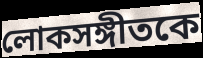
লোকসঙ্গীতকে